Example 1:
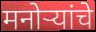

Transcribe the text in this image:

मनोऱ्यांचे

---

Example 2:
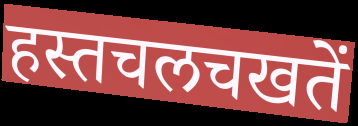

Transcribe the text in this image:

हस्तचलचखतें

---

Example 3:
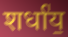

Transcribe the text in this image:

शर्धा॑य॒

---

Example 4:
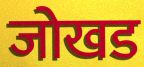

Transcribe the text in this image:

जोखड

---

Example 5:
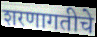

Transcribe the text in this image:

शरणागतीचे